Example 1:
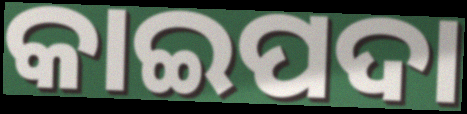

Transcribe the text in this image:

କାଇପଦା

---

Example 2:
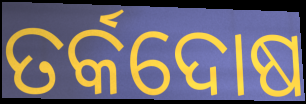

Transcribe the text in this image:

ତର୍କଦୋଷ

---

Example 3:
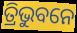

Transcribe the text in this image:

ତ୍ରିଭୁବନେ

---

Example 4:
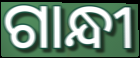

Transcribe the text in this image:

ଗାନ୍ଧୀ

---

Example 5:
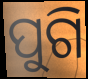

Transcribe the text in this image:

ପୁଗି